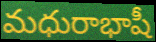
మధురాభాషీ